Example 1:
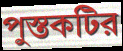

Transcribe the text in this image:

পুস্তকটির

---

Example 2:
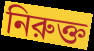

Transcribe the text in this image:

নিরুক্ত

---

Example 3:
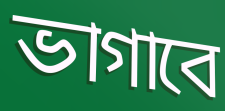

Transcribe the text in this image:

ভাগাবে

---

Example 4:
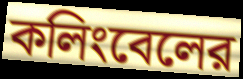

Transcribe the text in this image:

কলিংবেলের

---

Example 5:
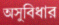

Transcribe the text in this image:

অসুবিধার